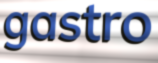
gastro